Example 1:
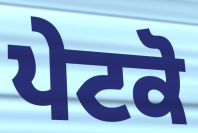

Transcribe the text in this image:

ਪੇਟਕੋ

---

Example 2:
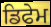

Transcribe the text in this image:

ਡਿਫੇਮ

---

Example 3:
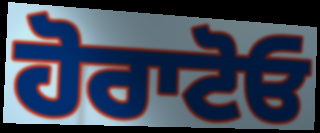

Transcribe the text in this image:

ਹੋਰਾਟੋਓ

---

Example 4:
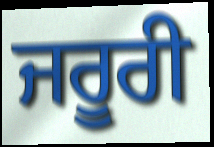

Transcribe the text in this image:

ਜਰੂਰੀ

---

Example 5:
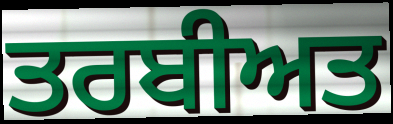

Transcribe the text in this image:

ਤਰਬੀਅਤ